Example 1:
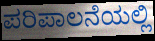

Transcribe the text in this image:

ಪರಿಪಾಲನೆಯಲ್ಲಿ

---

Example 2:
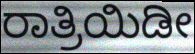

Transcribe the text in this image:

ರಾತ್ರಿಯಿಡೀ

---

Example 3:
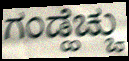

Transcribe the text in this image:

ಗಂಡ್ಹೆಚ್ಚು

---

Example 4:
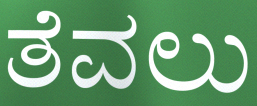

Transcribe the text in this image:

ತೆವಲು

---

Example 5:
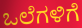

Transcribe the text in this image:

ಒಲೆಗಳಿಗೆ